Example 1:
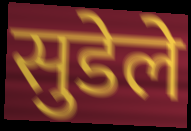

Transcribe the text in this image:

सुडेले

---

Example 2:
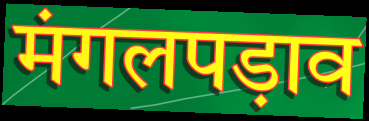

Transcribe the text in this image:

मंगलपड़ाव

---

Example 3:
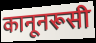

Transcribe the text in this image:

कानूनरूसी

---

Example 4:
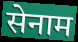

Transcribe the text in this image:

सेनाम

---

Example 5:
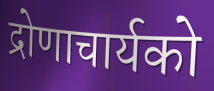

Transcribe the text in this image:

द्रोणाचार्यको